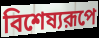
বিশেষ্যরূপে